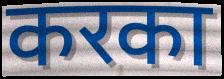
करका